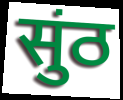
सुंठ